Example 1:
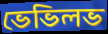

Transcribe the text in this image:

ভেভিলভ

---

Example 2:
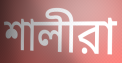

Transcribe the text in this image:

শালীরা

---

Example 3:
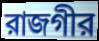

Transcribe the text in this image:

রাজগীর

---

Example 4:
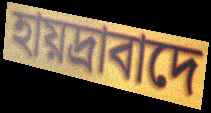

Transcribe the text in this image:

হায়দ্রাবাদে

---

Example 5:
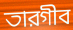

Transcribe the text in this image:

তারগীব